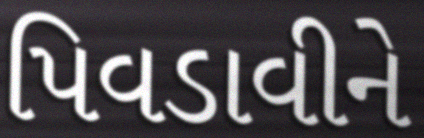
પિવડાવીને